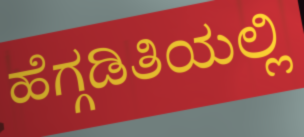
ಹೆಗ್ಗಡಿತಿಯಲ್ಲಿ